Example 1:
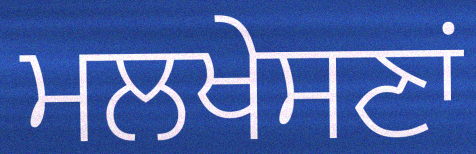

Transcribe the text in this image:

ਮਲਖੇਸਣਾਂ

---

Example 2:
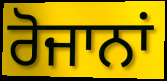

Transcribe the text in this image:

ਰੋਜਾਨਾਂ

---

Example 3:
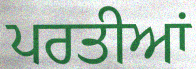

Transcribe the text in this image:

ਪਰਤੀਆਂ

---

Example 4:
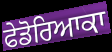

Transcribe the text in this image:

ਫੇਡੋਰਿਆਕਾ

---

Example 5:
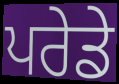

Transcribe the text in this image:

ਪਰੇਡੇ